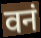
वनं